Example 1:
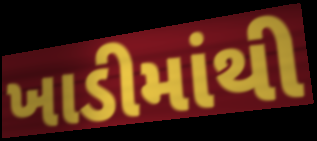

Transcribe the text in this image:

ખાડીમાંથી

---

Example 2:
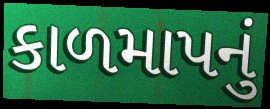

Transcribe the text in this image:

કાળમાપનું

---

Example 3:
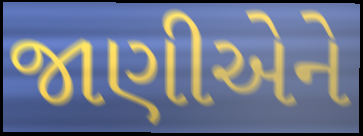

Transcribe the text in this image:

જાણીએને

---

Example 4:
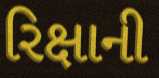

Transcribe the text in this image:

રિક્ષાની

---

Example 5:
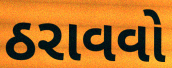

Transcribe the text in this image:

ઠરાવવો